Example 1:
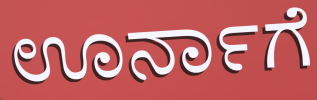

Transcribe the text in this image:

ಊರ್ನಾಗೆ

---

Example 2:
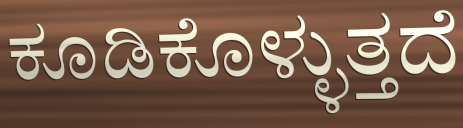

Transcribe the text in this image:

ಕೂಡಿಕೊಳ್ಳುತ್ತದೆ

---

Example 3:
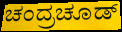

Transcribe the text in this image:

ಚಂದ್ರಚೂಡ್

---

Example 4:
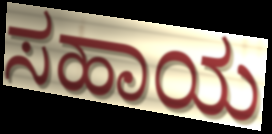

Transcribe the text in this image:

ಸಹಾಯ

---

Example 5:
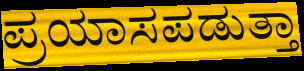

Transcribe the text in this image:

ಪ್ರಯಾಸಪಡುತ್ತಾ